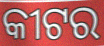
କୀଟର